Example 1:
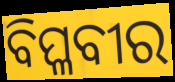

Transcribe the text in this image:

ବିପ୍ଳବୀର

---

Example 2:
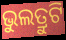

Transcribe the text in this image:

ଭୁଲତ୍ରୁଟି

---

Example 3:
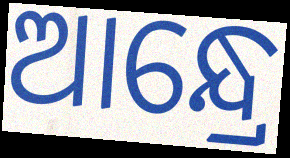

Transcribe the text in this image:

ଆନ୍ଧ୍ରେ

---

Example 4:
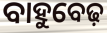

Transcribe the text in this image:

ବାହୁବେଢ଼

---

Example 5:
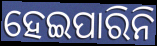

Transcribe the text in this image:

ହେଇପାରିନି